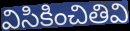
విసికించితివి